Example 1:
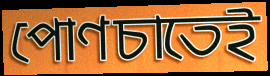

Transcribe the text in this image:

পোণচাতেই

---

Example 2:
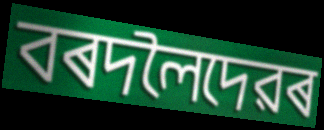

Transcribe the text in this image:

বৰদলৈদেৱৰ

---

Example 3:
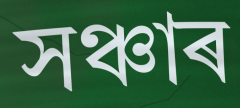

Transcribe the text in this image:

সঞ্চাৰ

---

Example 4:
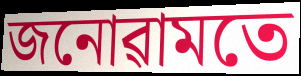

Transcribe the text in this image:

জনোৱামতে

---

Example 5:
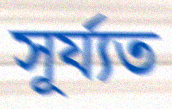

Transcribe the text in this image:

সূৰ্য্যত